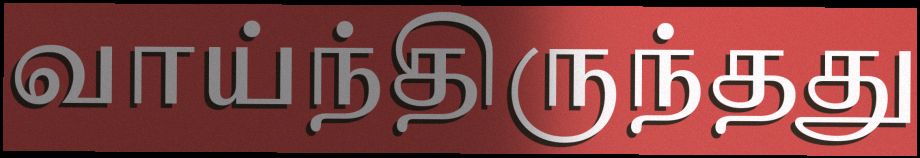
வாய்ந்திருந்தது